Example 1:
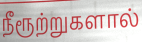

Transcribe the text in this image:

நீரூற்றுகளால்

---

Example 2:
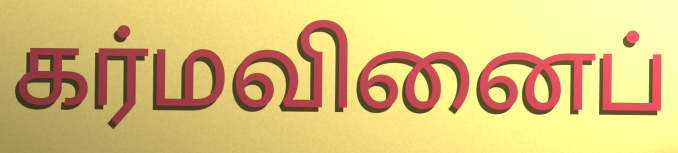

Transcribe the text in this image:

கர்மவினைப்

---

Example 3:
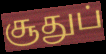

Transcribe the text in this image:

சூதுப்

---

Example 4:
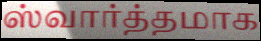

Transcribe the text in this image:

ஸ்வார்த்தமாக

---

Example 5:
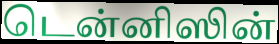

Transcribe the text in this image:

டென்னிஸின்